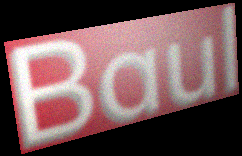
Baul